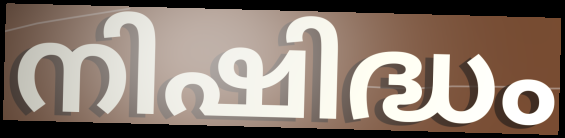
നിഷിദ്ധം